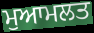
ਮੁਆਮਲਤ